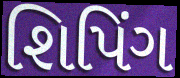
શિપિંગ